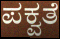
ಪಕ್ವತೆ